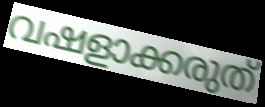
വഷളാക്കരുത്